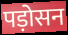
पड़ोसन